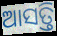
ଆସତ୍ତି